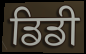
ਡਿਡੀ